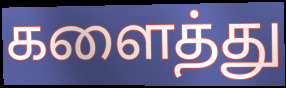
களைத்து